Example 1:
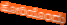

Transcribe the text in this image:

ಹೋರಿಯೊಂದು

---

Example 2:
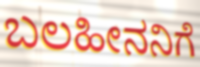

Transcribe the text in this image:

ಬಲಹೀನನಿಗೆ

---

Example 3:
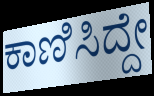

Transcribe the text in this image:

ಕಾಣಿಸಿದ್ದೇ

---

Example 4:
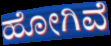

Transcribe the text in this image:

ಹೋಗಿವೆ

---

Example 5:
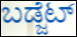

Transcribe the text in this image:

ಬಡ್ಜೆಟ್